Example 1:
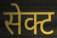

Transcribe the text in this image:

सेक्ट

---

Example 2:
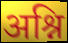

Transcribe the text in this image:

अश्नि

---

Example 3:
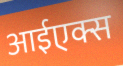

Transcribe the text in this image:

आईएक्स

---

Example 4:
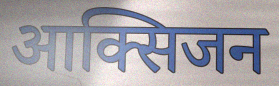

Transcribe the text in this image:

आक्सिजन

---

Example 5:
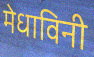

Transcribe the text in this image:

मेधाविनी